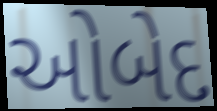
ઓબેદ